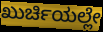
ಖುರ್ಚಿಯಲ್ಲೇ